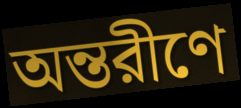
অন্তরীণে